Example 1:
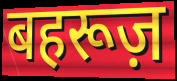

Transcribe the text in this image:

बहरूज़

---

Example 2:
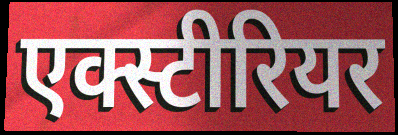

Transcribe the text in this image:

एक्स्टीरियर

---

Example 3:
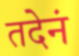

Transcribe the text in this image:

तदेनं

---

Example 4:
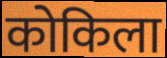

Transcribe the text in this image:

कोकिला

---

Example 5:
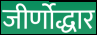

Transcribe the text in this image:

जीर्णोद्धार